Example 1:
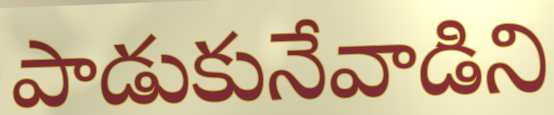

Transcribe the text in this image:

పాడుకునేవాడిని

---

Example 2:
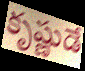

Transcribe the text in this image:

కృష్ణుడే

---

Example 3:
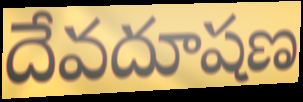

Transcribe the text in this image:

దేవదూషణ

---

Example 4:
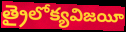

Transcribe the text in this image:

త్రైలోక్యవిజయీ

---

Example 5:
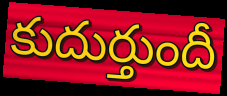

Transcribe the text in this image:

కుదుర్తుందీ